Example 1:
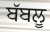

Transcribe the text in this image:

ਬੱਬਲੂ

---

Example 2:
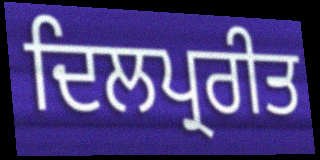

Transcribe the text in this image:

ਦਿਲਪ੍ਰਰੀਤ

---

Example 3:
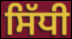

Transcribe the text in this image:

ਸਿੱਧੀ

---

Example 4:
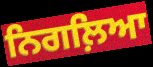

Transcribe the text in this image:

ਨਿਗਲ਼ਿਆ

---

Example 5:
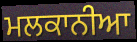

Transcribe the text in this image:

ਮਲਕਾਨੀਆ